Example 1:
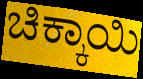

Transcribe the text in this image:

ಚಿಕ್ಕಾಯಿ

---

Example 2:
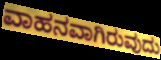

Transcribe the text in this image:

ವಾಹನವಾಗಿರುವುದು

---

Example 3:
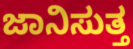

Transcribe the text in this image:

ಜಾನಿಸುತ್ತ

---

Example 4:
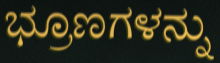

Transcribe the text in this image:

ಭ್ರೂಣಗಳನ್ನು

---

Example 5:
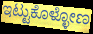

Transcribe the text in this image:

ಇಟ್ಟುಕೊಳ್ಳೋಣ